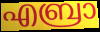
എബ്രാ